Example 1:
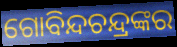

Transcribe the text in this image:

ଗୋବିନ୍ଦଚନ୍ଦ୍ରଙ୍କର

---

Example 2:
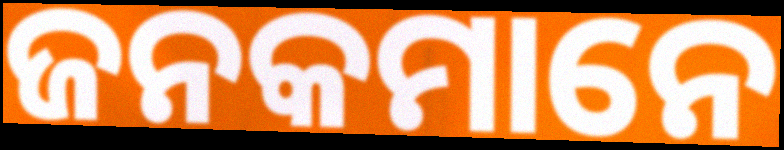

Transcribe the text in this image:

ଜନକମାନେ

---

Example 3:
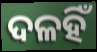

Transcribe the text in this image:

ଦଳହିଁ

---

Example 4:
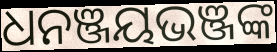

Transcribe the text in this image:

ଧନଞ୍ଜୟଭଞ୍ଜଙ୍କ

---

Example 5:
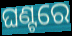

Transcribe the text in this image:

ଘଣ୍ଟରେ